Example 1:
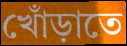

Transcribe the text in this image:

খোঁড়াতে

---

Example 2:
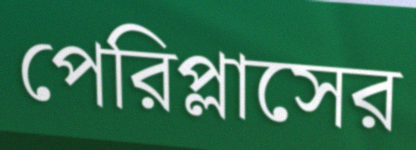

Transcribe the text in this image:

পেরিপ্লাসের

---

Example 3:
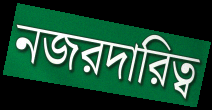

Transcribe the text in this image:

নজরদারিত্ব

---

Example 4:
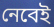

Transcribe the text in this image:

নেবেই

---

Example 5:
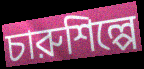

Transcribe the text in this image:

চারুশিল্পে